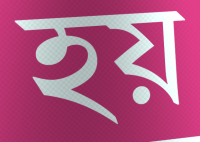
হয়